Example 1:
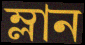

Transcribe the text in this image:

ম্লান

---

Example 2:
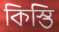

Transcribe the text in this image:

কিস্তি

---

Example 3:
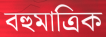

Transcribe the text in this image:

বহুমাত্ৰিক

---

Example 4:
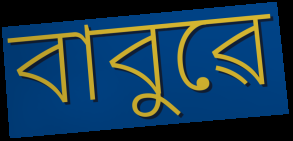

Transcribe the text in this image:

বাবুৱে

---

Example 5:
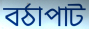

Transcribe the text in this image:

বঠাপাট